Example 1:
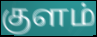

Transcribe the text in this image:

குளம்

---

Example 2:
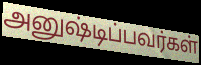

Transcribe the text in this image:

அனுஷ்டிப்பவர்கள்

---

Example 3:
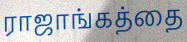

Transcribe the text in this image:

ராஜாங்கத்தை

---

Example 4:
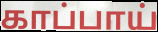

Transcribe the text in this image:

காப்பாய்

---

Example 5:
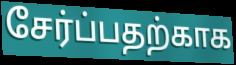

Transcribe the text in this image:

சேர்ப்பதற்காக